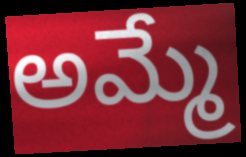
అమ్మే